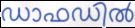
ഡാഫഡിൽ